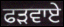
ਫੜਵਾਏ